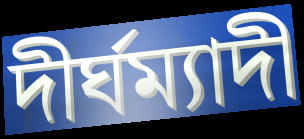
দীৰ্ঘম্যাদী